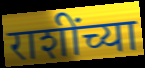
राशींच्या